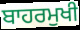
ਬਾਹਰਮੁਖੀ